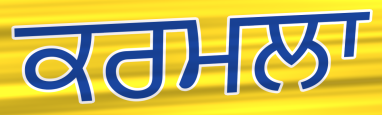
ਕਰਮਲਾ